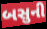
બસુની